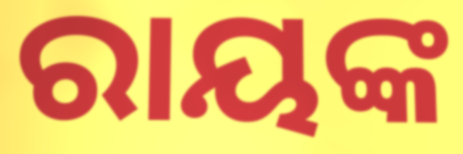
ରାୟଙ୍କ